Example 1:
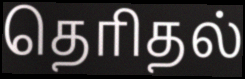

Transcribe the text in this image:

தெரிதல்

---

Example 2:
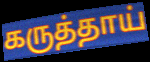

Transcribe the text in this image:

கருத்தாய்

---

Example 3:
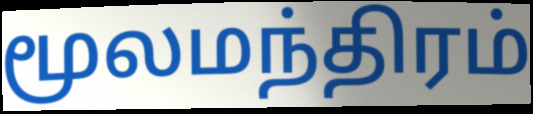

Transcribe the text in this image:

மூலமந்திரம்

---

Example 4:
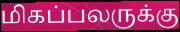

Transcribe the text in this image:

மிகப்பலருக்கு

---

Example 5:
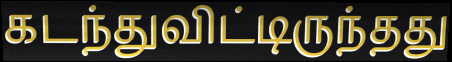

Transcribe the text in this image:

கடந்துவிட்டிருந்தது